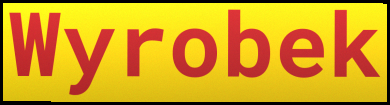
Wyrobek